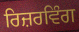
ਰਿਜ਼ਰਵਿੰਗ